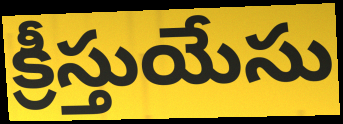
క్రీస్తుయేసు